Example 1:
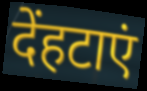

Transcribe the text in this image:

देंहटाएं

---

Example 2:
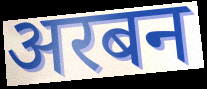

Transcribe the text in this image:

अरबन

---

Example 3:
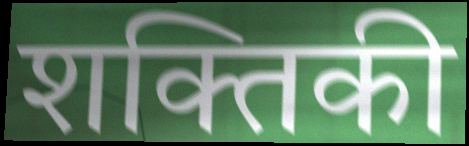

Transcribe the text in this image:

शक्तिकी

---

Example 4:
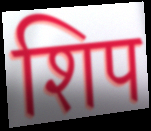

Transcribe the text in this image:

शिप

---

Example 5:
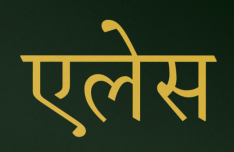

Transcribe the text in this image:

एलेस